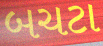
બચટા